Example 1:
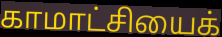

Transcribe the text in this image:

காமாட்சியைக்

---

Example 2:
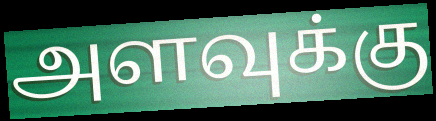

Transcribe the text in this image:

அளவுக்கு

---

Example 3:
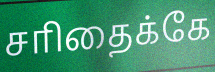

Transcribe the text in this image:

சரிதைக்கே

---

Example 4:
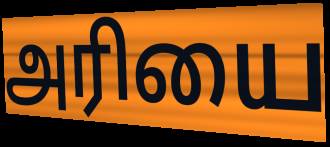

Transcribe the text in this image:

அரியை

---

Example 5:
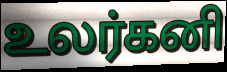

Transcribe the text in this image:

உலர்கனி